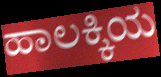
ಹಾಲಕ್ಕಿಯ